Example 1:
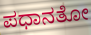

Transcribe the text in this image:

ಪಧಾನತೋ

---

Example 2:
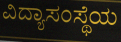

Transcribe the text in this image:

ವಿದ್ಯಾಸಂಸ್ಥೆಯ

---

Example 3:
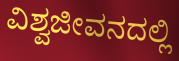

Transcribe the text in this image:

ವಿಶ್ವಜೀವನದಲ್ಲಿ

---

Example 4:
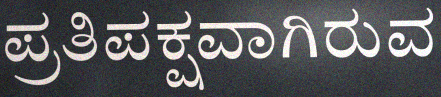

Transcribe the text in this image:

ಪ್ರತಿಪಕ್ಷವಾಗಿರುವ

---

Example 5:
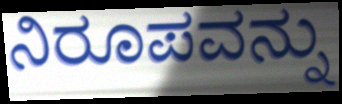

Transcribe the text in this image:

ನಿರೂಪವನ್ನು